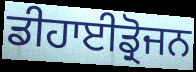
ਡੀਹਾਈਡ੍ਰੋਜਨ